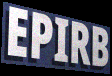
EPIRB